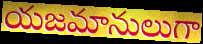
యజమానులుగా